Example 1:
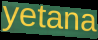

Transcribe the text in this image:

yetana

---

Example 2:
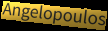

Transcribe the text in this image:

Angelopoulos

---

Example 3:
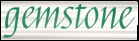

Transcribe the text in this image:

gemstone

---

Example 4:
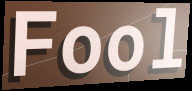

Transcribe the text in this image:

Fool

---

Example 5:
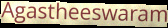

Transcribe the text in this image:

Agastheeswaram